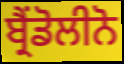
ਬ੍ਰੈਂਡੋਲੀਨੋ